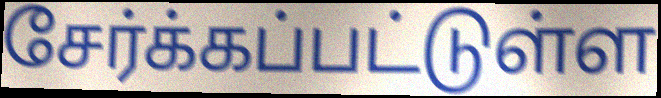
சேர்க்கப்பட்டுள்ள